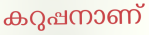
കറുപ്പനാണ്